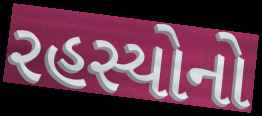
રહસ્યોનો